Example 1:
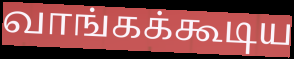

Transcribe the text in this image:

வாங்கக்கூடிய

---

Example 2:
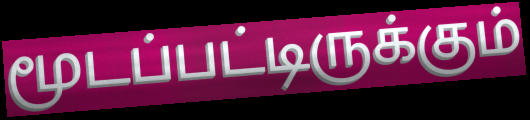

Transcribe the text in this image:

மூடப்பட்டிருக்கும்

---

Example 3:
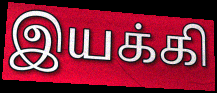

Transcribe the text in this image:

இயக்கி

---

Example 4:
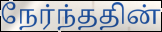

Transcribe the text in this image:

நேர்ந்ததின்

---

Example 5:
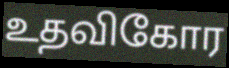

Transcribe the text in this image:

உதவிகோர